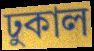
ঢুকাল